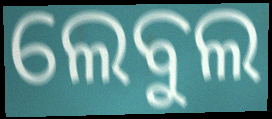
ଲେବୁଲ